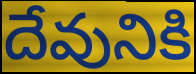
దేవునికి